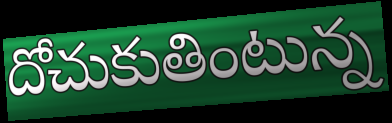
దోచుకుతింటున్న